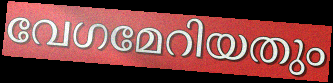
വേഗമേറിയതും